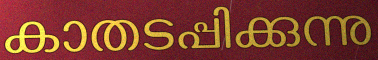
കാതടപ്പിക്കുന്നു